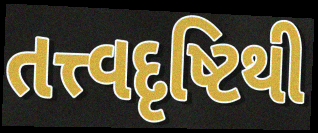
તત્ત્વદૃષ્ટિથી